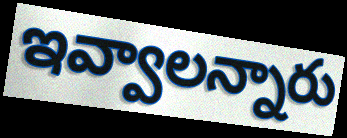
ఇవ్వాలన్నారు